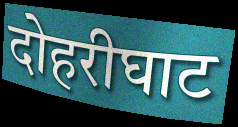
दोहरीघाट